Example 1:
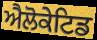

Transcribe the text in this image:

ਐਲੋਕੇਟਿਡ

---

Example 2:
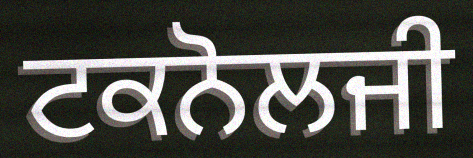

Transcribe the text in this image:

ਟਕਨੋਲਜੀ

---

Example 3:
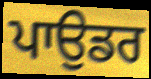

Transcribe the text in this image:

ਪਾਉਡਰ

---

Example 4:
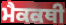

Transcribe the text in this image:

ਮੈਕਕਥੀ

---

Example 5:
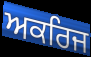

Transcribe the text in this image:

ਅਕਰਿਜ